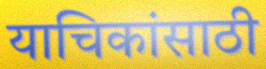
याचिकांसाठी